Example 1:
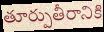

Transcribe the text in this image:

తూర్పుతీరానికి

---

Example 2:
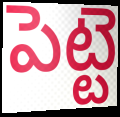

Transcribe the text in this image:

పెట్టె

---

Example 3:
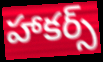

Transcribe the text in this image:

హాకర్స్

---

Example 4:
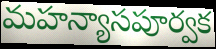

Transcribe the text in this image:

మహన్యాసపూర్వక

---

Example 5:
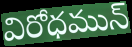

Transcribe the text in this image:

విరోధమున్